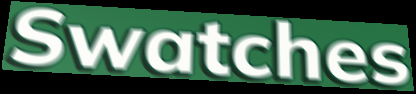
Swatches